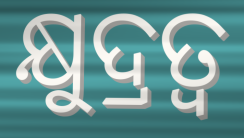
କ୍ଷୁଦ୍ରତ୍ୱ